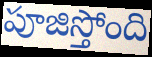
పూజిస్తోంది